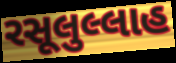
રસૂલુલ્લાહ